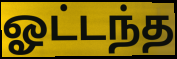
ஓட்டந்த